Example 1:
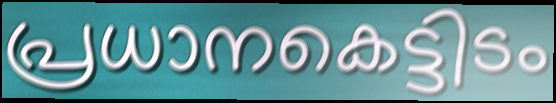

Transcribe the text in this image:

പ്രധാനകെട്ടിടം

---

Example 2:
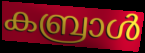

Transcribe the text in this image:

കബ്രാൾ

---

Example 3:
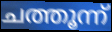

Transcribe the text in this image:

ചത്തൂന്ന്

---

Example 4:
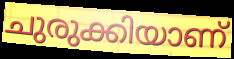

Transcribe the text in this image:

ചുരുക്കിയാണ്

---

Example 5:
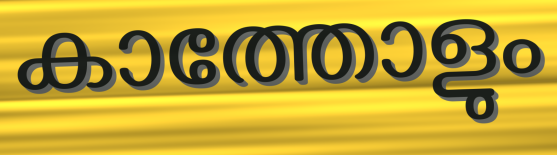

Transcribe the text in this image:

കാത്തോളും